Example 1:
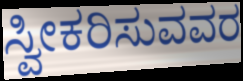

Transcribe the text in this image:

ಸ್ವೀಕರಿಸುವವರ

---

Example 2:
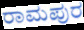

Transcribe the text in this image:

ರಾಮಪುರ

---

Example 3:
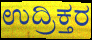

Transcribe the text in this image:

ಉದ್ರಿಕ್ತರ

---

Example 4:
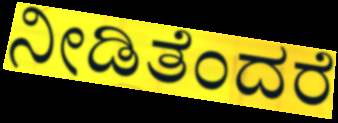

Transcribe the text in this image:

ನೀಡಿತೆಂದರೆ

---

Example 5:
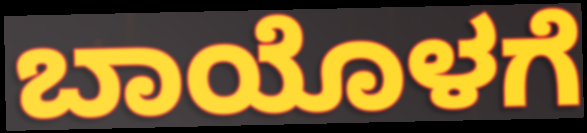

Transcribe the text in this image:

ಬಾಯೊಳಗೆ